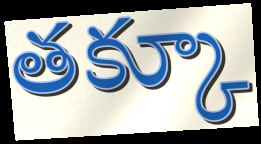
తక్కూ